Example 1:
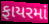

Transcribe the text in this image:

ફાયરમાં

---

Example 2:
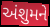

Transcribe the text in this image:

અંશુમને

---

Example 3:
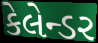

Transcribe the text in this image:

કેલેન્ડર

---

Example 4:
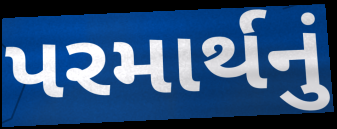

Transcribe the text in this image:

પરમાર્થનું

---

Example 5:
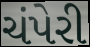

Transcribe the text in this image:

ચંપેરી